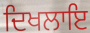
ਦਿਖਲਾਇ